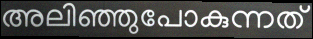
അലിഞ്ഞുപോകുന്നത്